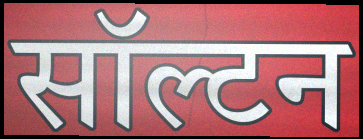
सॉल्टन